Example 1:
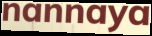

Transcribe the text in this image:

nannaya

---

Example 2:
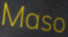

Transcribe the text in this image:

Maso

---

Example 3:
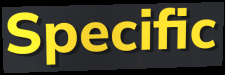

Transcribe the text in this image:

Specific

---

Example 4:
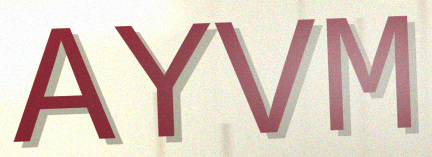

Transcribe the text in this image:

AYVM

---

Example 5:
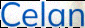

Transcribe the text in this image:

Celan